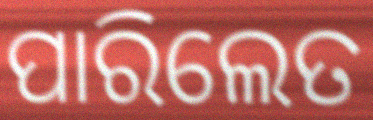
ପାରିଲେତ